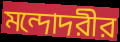
মন্দোদরীর